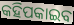
କହିପକାଇବ